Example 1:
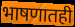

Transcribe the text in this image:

भाषणातही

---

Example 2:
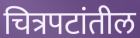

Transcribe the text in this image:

चित्रपटांतील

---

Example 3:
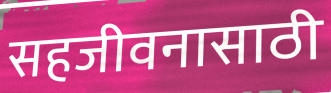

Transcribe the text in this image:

सहजीवनासाठी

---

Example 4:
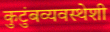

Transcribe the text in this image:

कुटुंबव्यवस्थेशी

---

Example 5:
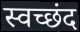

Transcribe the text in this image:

स्वच्छंद